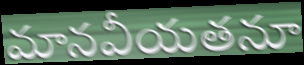
మానవీయతనూ